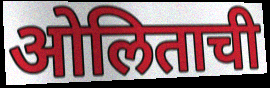
ओलिताची